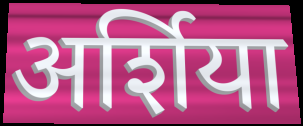
अर्शिया